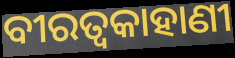
ବୀରତ୍ୱକାହାଣୀ